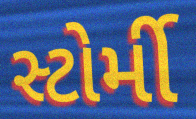
સ્ટોર્મી